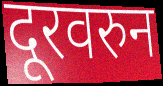
दूरवरुन